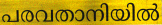
പരവതാനിയിൽ